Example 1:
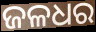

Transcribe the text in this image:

ଜଳଧର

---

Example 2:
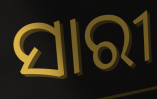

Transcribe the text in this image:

ସାରୀ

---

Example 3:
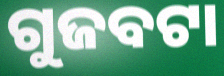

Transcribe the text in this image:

ଗୁଜବଟା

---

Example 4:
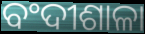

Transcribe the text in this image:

ବଂଦୀଶାଳା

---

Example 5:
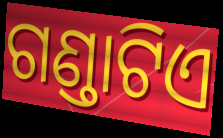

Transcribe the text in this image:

ଗଣ୍ଡାଟିଏ